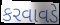
કરવાવડે